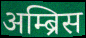
अम्ब्रिस